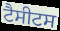
ਟੈਸੀਟਸ